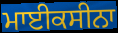
ਮਾਈਕਸੀਨਾ